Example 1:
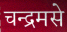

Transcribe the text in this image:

चन्द्रमसे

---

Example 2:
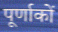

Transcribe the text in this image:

पूर्णाकों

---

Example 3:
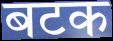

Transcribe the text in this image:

बटक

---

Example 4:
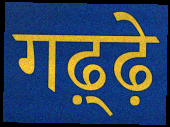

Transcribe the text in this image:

गढ़्ढ़े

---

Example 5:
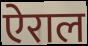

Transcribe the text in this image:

ऐराल